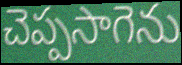
చెప్పసాగెను